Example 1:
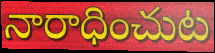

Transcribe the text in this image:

నారాధించుట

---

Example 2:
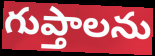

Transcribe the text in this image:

గుప్తాలను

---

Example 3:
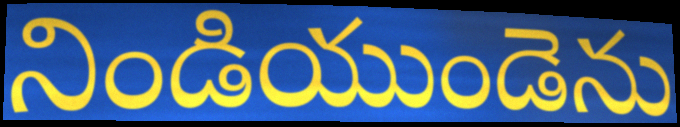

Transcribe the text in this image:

నిండియుండెను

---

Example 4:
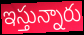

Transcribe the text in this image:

ఇస్తున్నారు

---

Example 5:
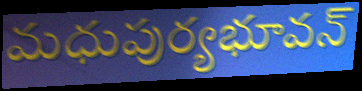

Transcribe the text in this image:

మధుపుర్యభూవన్